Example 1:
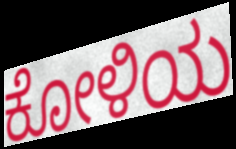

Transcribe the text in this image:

ಕೋಳಿಯ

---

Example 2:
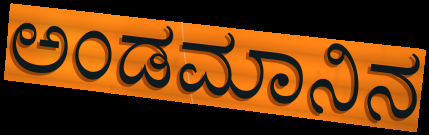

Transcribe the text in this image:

ಅಂಡಮಾನಿನ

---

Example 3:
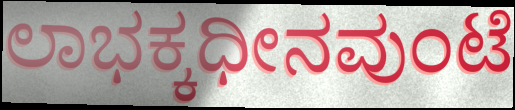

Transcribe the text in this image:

ಲಾಭಕ್ಕಧೀನವುಂಟೆ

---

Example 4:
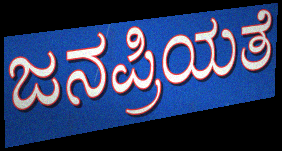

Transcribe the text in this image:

ಜನಪ್ರಿಯತೆ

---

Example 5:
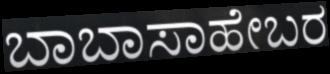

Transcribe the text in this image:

ಬಾಬಾಸಾಹೇಬರ